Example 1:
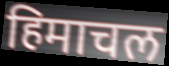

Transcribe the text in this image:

हिमाचल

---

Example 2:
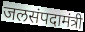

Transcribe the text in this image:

जलसंपदामंत्री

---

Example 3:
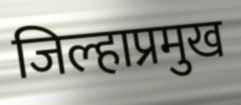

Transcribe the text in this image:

जिल्हाप्रमुख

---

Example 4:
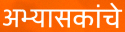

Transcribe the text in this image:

अभ्यासकांचे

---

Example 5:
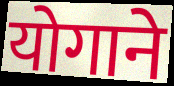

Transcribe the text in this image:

योगाने